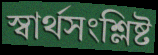
স্বার্থসংশ্লিষ্ট